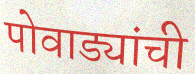
पोवाड्यांची